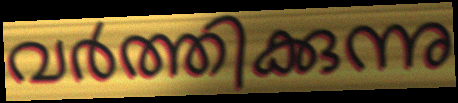
വർത്തിക്കുന്നു